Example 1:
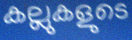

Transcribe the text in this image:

കല്ലുകളുടെ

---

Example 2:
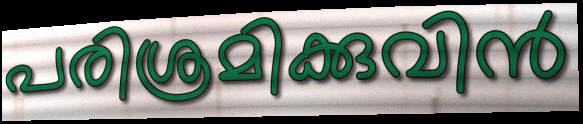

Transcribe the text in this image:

പരിശ്രമിക്കുവിൻ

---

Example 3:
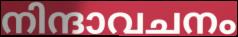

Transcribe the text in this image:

നിന്ദാവചനം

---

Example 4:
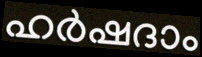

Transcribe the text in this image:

ഹർഷദാം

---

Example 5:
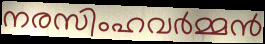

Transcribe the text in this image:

നരസിംഹവർമ്മൻ